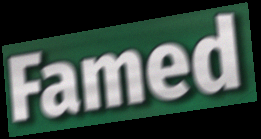
Famed